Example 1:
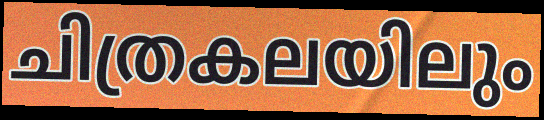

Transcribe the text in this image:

ചിത്രകലയിലും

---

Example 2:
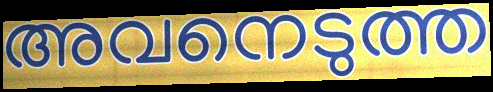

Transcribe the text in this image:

അവനെടുത്ത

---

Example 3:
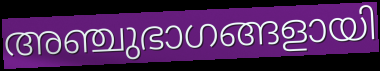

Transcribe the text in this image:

അഞ്ചുഭാഗങ്ങളായി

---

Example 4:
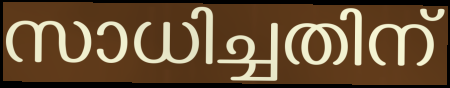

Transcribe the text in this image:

സാധിച്ചതിന്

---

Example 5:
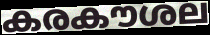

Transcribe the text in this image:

കരകൗശല